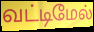
வட்டிமேல்